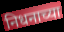
निधनाच्या